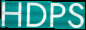
HDPS